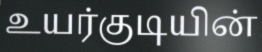
உயர்குடியின்